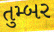
તુમ્બર